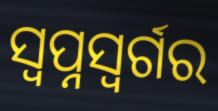
ସ୍ୱପ୍ନସ୍ୱର୍ଗର